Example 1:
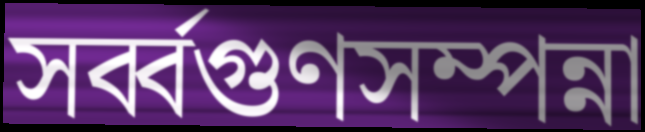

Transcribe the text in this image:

সর্ব্বগুণসম্পন্না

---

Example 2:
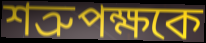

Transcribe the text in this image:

শত্রুপক্ষকে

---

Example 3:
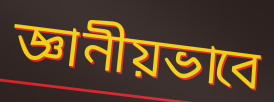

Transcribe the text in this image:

জ্ঞানীয়ভাবে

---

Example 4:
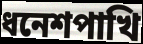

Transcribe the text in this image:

ধনেশপাখি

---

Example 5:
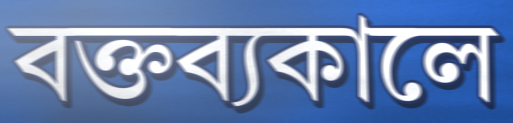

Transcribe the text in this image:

বক্তব্যকালে